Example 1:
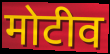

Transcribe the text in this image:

मोटीव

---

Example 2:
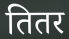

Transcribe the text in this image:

तितर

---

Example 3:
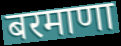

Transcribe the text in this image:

बरमाणा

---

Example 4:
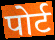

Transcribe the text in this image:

पोर्ट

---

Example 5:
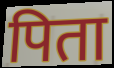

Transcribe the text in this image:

पिता